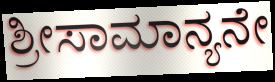
ಶ್ರೀಸಾಮಾನ್ಯನೇ